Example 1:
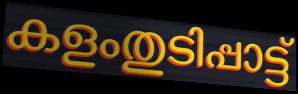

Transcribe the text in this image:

കളംതുടിപ്പാട്ട്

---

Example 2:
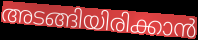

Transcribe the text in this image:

അടങ്ങിയിരിക്കാൻ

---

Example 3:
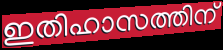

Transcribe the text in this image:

ഇതിഹാസത്തിന്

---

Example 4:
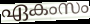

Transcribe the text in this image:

ഏകംസം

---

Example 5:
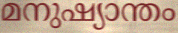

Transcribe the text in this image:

മനുഷ്യാന്തം